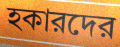
হকারদের